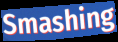
Smashing